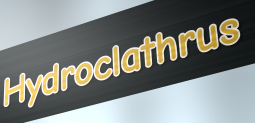
Hydroclathrus